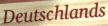
Deutschlands